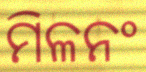
ମିଳନଂ